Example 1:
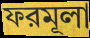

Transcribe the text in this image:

ফরমূলা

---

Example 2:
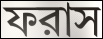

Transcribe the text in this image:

ফরাস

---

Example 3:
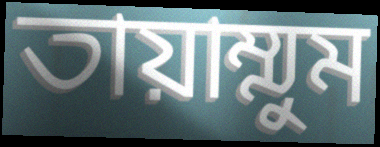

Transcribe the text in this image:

তায়াম্মুম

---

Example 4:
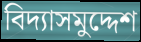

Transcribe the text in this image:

বিদ্যাসমুদ্দেশ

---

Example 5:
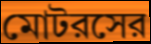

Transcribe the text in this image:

মোটরসের